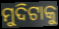
ମୁଦିଟାକୁ